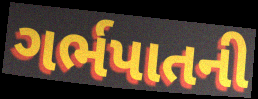
ગર્ભપાતની